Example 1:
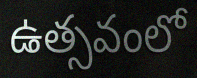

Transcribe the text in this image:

ఉత్సవంలో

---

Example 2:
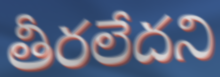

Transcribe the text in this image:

తీరలేదని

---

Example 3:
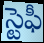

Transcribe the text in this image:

స్టెఫీ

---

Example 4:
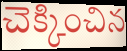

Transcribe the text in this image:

చెక్కించిన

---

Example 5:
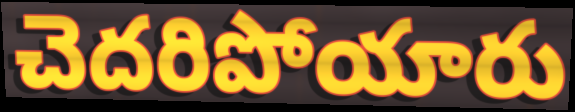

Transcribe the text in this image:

చెదరిపోయారు